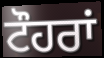
ਟੌਹਰਾਂ